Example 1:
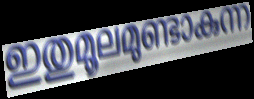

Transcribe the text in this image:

ഇതുമൂലമുണ്ടാകുന്ന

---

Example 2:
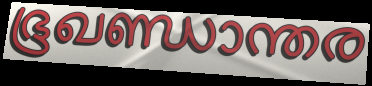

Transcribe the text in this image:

ഭൂഖണ്ഡാന്തര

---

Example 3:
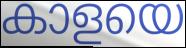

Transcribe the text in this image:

കാളയെ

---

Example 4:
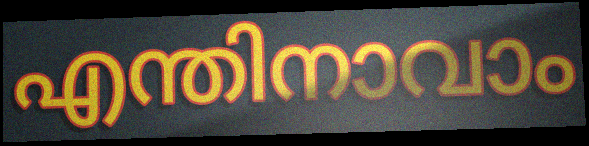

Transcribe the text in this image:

എന്തിനാവാം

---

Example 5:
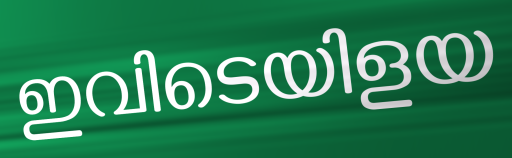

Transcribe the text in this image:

ഇവിടെയിളയ